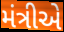
મંત્રીએ